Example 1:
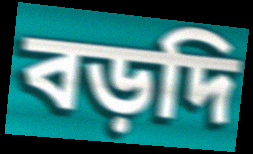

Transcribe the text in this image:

বড়দি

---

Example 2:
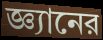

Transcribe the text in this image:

জ্ঞ্যানের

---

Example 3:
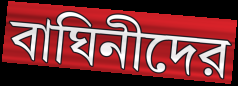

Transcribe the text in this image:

বাঘিনীদের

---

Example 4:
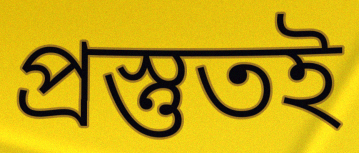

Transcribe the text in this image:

প্রস্তুতই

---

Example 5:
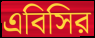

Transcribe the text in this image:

এবিসির